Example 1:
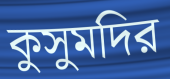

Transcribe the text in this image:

কুসুমদির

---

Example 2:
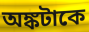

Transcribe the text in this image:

অঙ্কটাকে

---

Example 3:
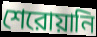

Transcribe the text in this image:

শেরোয়ানি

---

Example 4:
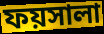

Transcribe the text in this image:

ফয়সালা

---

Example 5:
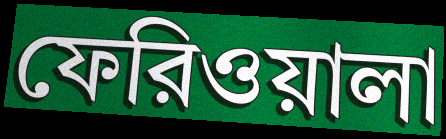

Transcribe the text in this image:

ফেরিওয়ালা